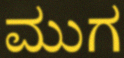
ಮುಗ